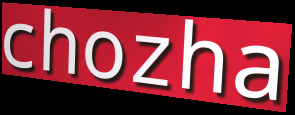
chozha